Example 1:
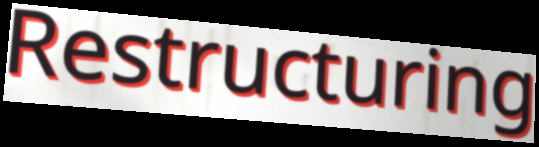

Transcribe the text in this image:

Restructuring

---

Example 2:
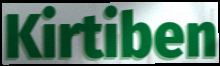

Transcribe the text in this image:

Kirtiben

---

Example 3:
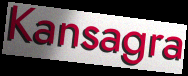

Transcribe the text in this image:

Kansagra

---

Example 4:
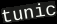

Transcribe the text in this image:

tunic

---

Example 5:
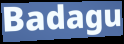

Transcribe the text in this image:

Badagu